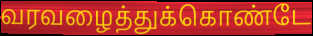
வரவழைத்துக்கொண்டே